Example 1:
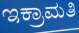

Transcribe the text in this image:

ಇಕ್ರಾಮತಿ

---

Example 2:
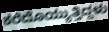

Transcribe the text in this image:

ಕರೆದೊಯ್ಯುತ್ತಿದ್ದಳು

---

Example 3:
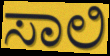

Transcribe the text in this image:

ಸಾಲಿ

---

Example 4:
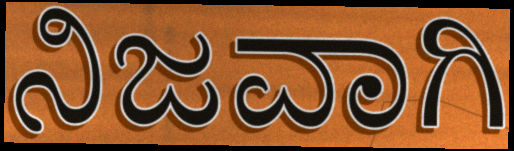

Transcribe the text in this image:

ನಿಜವಾಗಿ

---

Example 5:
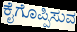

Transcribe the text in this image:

ಕೈಗೊಪ್ಪಿಸುವ